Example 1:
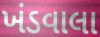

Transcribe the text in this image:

ખંડવાલા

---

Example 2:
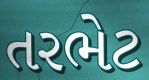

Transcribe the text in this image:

તરભેટ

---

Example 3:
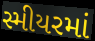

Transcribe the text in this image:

સ્મીયરમાં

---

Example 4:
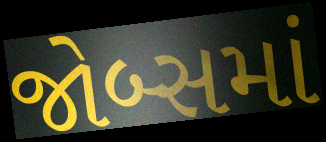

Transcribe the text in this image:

જોબ્સમાં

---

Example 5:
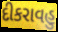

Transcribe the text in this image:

દીકરાવહુ